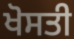
ਖੋਸਤੀ